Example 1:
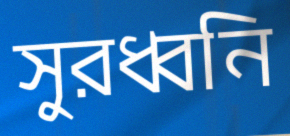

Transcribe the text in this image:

সুরধ্বনি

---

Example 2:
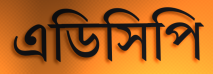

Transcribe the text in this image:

এডিসিপি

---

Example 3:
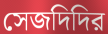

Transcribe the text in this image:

সেজদিদির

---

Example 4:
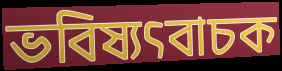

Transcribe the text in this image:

ভবিষ্যৎবাচক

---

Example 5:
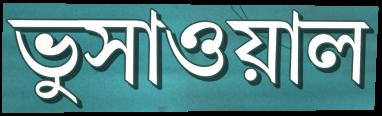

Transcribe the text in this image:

ভুসাওয়াল